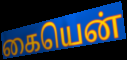
கையென்